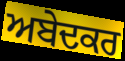
ਅਬੇਦਕਰ